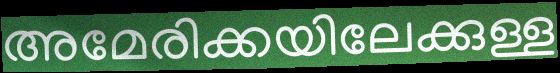
അമേരിക്കയിലേക്കുള്ള